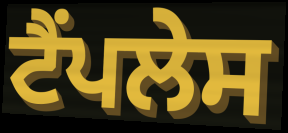
ਟੈਂਪਲੇਸ